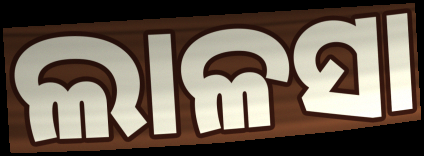
ଲାଳସା